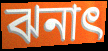
ঝনাৎ